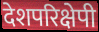
देशपरिक्षेपी